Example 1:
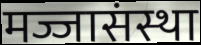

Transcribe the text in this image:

मज्जासंस्था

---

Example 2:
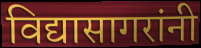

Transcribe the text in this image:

विद्यासागरांनी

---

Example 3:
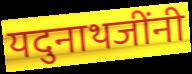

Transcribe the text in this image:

यदुनाथजींनी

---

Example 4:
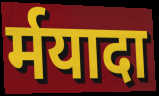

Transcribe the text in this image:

र्मयादा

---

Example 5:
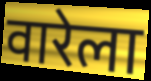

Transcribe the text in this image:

वारेला